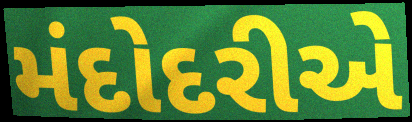
મંદોદરીએ